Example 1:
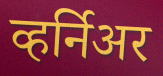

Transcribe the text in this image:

व्हर्निअर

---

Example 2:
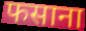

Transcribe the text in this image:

फसाना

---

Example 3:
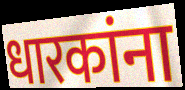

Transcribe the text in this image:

धारकांना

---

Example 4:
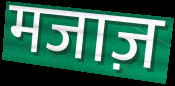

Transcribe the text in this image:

मजाज़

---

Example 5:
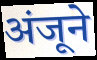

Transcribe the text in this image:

अंजूने